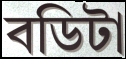
বডিটা